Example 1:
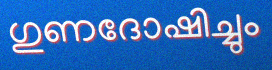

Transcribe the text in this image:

ഗുണദോഷിച്ചും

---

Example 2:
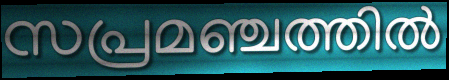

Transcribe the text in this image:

സപ്രമഞ്ചത്തിൽ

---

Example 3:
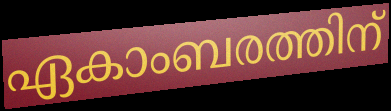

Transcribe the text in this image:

ഏകാംബരത്തിന്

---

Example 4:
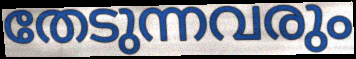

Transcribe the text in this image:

തേടുന്നവരും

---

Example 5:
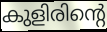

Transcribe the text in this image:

കുളിരിന്റെ